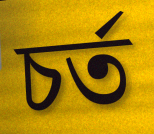
চৰ্ত